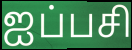
ஐப்பசி